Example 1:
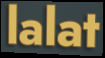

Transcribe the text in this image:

lalat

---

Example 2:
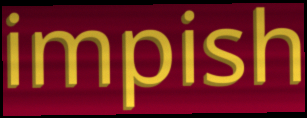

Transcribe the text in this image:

impish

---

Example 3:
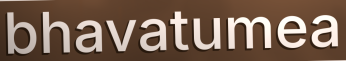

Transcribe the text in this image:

bhavatumea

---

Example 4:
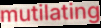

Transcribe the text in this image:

mutilating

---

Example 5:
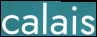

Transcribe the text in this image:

calais